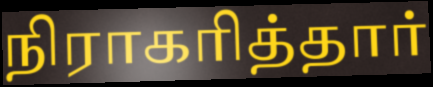
நிராகரித்தார்